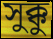
সুক্কু